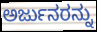
ಅರ್ಜುನರನ್ನು